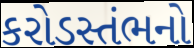
કરોડસ્તંભનો